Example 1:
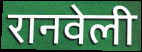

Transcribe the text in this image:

रानवेली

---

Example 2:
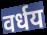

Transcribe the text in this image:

वर्धय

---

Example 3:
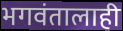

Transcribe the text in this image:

भगवंतालाही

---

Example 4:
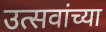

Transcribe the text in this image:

उत्सवांच्या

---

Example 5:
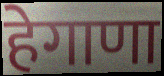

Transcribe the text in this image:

हेगाणा